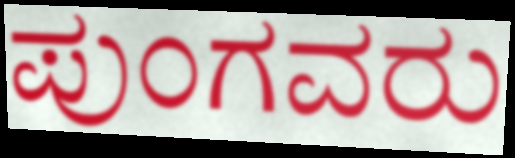
ಪುಂಗವರು